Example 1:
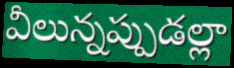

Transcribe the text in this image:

వీలున్నప్పుడల్లా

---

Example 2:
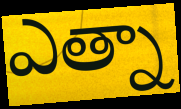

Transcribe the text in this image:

ఎత్నా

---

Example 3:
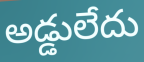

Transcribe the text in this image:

అడ్డులేదు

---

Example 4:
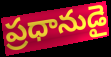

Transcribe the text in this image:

ప్రధానుడై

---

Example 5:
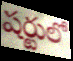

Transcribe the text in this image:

షర్టులో